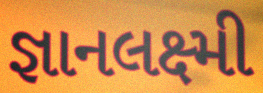
જ્ઞાનલક્ષ્મી